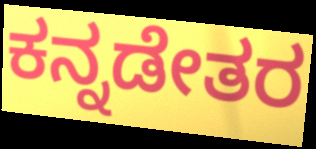
ಕನ್ನಡೇತರ